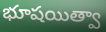
భూషయిత్వా